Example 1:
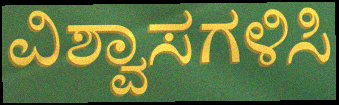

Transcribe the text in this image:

ವಿಶ್ವಾಸಗಳಿಸಿ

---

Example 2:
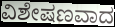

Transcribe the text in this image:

ವಿಶೇಷಣವಾದ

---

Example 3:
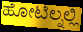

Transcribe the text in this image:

ಹೋಟೆಲ್ನಲ್ಲಿ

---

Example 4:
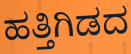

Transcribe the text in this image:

ಹತ್ತಿಗಿಡದ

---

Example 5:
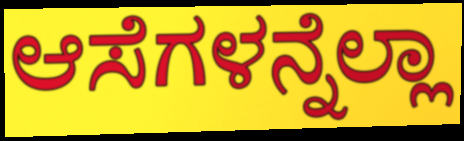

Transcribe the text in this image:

ಆಸೆಗಳನ್ನೆಲ್ಲಾ